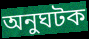
অনুঘটক